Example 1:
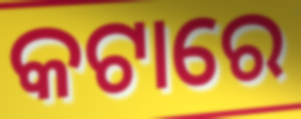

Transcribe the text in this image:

କଟାରେ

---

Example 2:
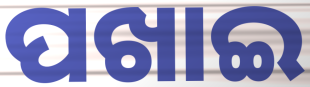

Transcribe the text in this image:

ପଖାଇ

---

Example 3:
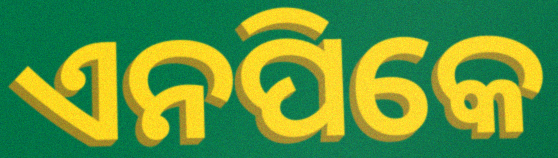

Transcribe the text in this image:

ଏନପିକେ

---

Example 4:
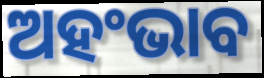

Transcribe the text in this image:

ଅହଂଭାବ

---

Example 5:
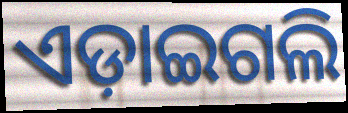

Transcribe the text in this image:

ଏଡ଼ାଇଗଲି